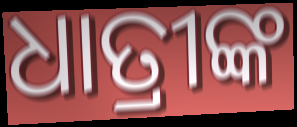
ଧାତ୍ରୀଙ୍କ